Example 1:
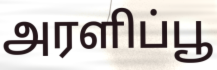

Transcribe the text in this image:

அரளிப்பூ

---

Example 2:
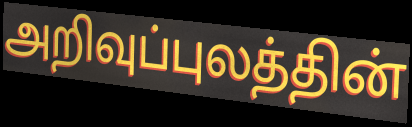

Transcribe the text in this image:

அறிவுப்புலத்தின்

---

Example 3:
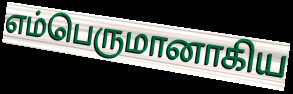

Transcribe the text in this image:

எம்பெருமானாகிய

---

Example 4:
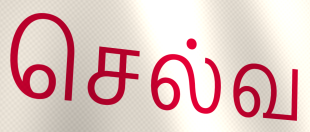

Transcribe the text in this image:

செல்வ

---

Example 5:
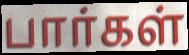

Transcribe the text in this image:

பார்கள்